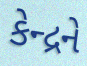
કેન્દ્રને